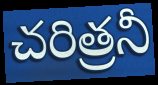
చరిత్రనీ